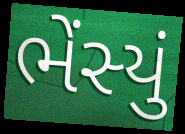
ભેંસ્યું